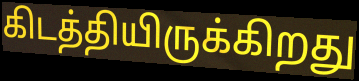
கிடத்தியிருக்கிறது